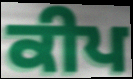
ਕੀਪ